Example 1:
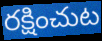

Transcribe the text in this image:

రక్షించుట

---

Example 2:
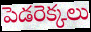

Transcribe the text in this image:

పెడరెక్కలు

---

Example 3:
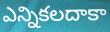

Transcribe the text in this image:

ఎన్నికలదాకా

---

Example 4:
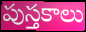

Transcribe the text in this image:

పుస్తకాలు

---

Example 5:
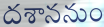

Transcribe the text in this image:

దశాననుం